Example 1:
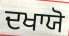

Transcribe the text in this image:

ਦਖਾਯੋ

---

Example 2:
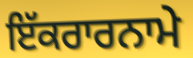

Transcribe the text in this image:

ਇੱਕਰਾਰਨਾਮੇ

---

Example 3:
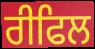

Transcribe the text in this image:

ਰੀਫਿਲ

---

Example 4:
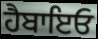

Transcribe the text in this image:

ਹੈਬਾਇਓ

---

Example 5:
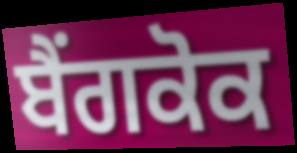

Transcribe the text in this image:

ਬੈਂਗਕੋਕ